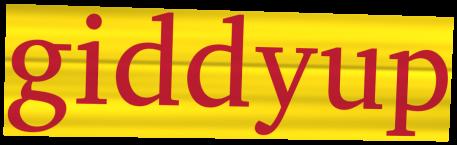
giddyup